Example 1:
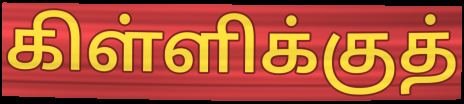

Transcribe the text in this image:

கிள்ளிக்குத்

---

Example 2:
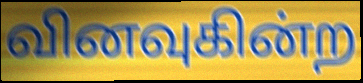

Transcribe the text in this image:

வினவுகின்ற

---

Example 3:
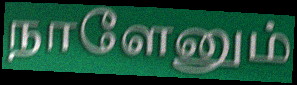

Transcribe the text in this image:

நாளேனும்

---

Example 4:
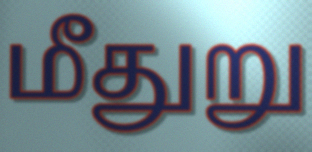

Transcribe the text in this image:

மீதுறு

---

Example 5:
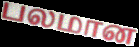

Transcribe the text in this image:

பலமான